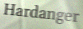
Hardanger